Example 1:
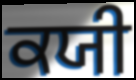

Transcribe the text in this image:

ਕਯੀ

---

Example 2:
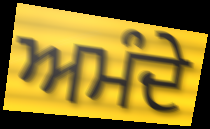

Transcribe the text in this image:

ਅਮੰਦੇ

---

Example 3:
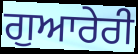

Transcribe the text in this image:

ਗੁਆਰੇਰੀ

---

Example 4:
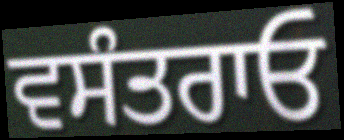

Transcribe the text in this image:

ਵਸੰਤਰਾਓ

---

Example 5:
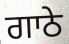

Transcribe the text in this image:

ਗਾਠੇ